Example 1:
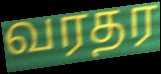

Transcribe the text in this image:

வரதர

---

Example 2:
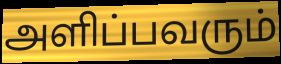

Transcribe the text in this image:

அளிப்பவரும்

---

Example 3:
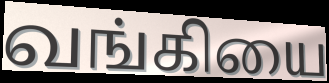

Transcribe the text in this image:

வங்கியை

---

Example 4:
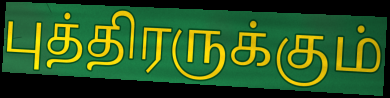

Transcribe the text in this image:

புத்திரருக்கும்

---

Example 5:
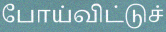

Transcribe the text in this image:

போய்விட்டுச்